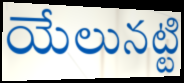
యేలునట్టి